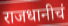
राजधानीचं